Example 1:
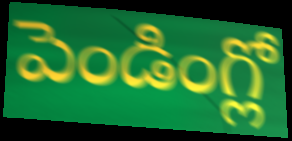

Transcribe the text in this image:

పెండింగ్లో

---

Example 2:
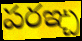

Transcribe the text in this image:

పరఞ్చ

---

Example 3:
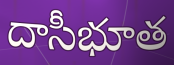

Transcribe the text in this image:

దాసీభూత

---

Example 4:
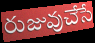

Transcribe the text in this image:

రుజువుచేసే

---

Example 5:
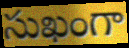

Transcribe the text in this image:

సుఖంగా